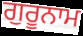
ਗੁਰੂਨਾਮ